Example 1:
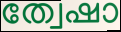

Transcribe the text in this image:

ത്വേഷാ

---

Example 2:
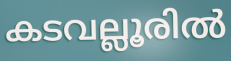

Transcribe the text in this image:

കടവല്ലൂരിൽ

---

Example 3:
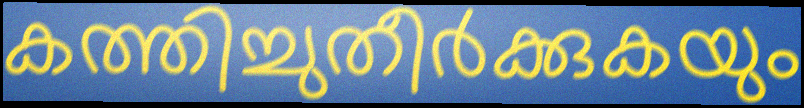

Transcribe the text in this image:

കത്തിച്ചുതീർക്കുകയും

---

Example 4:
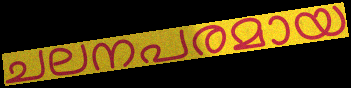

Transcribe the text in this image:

ചലനപരമായ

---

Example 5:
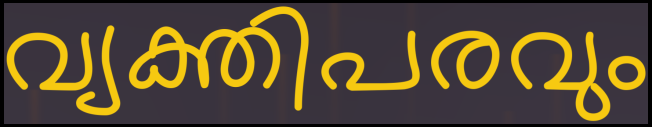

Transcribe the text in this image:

വ്യക്തിപരവും